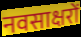
नवसाक्षरों